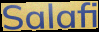
Salafi